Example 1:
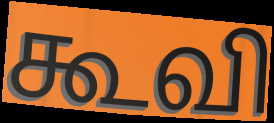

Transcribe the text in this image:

கூவி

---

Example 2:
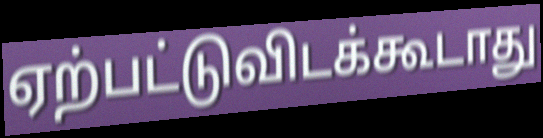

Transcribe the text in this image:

ஏற்பட்டுவிடக்கூடாது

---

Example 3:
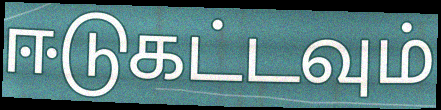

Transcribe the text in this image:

ஈடுகட்டவும்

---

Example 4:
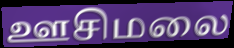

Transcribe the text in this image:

ஊசிமலை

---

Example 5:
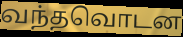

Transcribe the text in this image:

வந்தவொடன